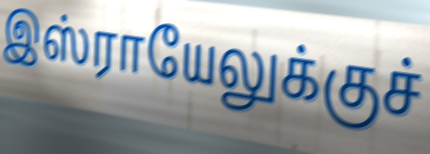
இஸ்ராயேலுக்குச்